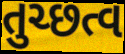
તુચ્છત્વ